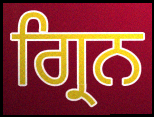
ਗ੍ਰਿਨ